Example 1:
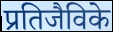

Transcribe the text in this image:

प्रतिजैविके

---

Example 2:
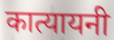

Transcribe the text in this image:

कात्यायनी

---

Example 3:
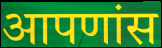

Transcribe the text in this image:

आपणांस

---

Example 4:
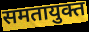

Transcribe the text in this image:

समतायुक्त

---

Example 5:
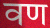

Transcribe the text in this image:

वण